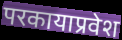
परकायाप्रवेश